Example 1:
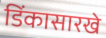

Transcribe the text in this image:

डिंकासारखे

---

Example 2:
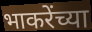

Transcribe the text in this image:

भाकरेंच्या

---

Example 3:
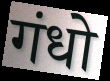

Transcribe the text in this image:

गंधो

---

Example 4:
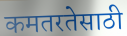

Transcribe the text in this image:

कमतरतेसाठी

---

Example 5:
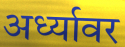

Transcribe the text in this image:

अर्ध्यावर